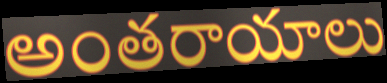
అంతరాయాలు